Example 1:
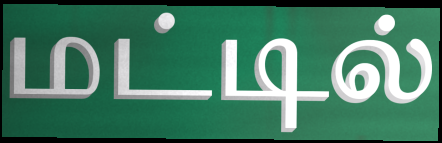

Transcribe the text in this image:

மட்டில்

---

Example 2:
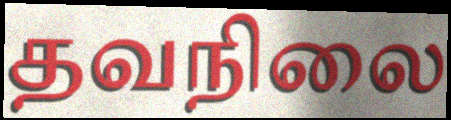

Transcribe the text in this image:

தவநிலை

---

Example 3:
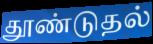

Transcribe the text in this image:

தூண்டுதல்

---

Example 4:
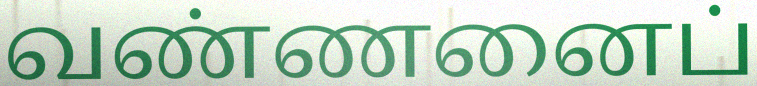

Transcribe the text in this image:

வண்ணனைப்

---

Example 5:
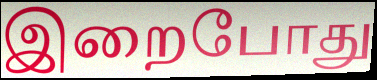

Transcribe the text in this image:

இறைபோது